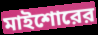
মাইশোরের